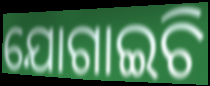
ଯୋଗାଇଚି